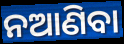
ନଆଣିବା